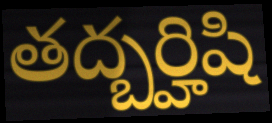
తద్బర్హిషి